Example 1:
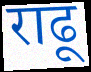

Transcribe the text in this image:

राढू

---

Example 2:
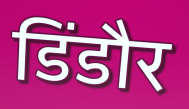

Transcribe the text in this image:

डिंडौर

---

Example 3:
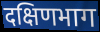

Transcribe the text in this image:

दक्षिणभाग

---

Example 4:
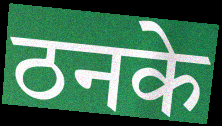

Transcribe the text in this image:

ठनके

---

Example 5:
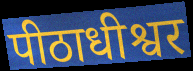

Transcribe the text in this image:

पीठाधीश्वर